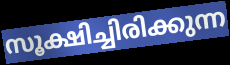
സൂക്ഷിച്ചിരിക്കുന്ന